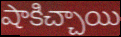
షాకిచ్చాయి